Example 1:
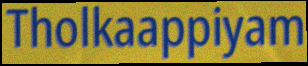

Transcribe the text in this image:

Tholkaappiyam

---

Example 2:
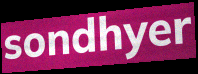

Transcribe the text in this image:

sondhyer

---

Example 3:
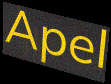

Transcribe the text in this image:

Apel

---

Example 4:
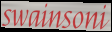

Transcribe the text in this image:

swainsoni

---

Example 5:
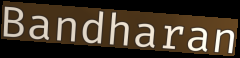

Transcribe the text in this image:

Bandharan